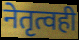
नेतृत्वही